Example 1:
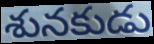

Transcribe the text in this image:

శునకుడు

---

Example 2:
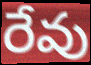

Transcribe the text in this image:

రేవు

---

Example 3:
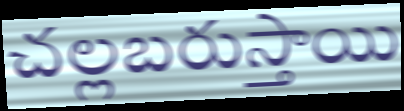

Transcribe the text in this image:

చల్లబరుస్తాయి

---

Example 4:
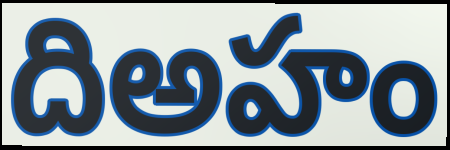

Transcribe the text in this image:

దిఅహం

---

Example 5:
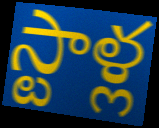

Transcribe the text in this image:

స్టాళ్ల